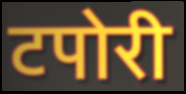
टपोरी